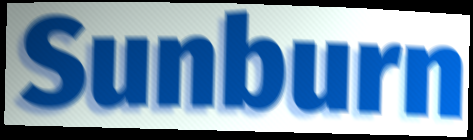
Sunburn